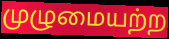
முழுமையற்ற